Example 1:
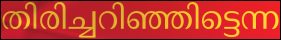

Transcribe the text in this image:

തിരിച്ചറിഞ്ഞിട്ടെന്ന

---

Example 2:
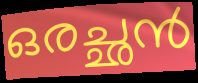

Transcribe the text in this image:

ഒരച്ഛൻ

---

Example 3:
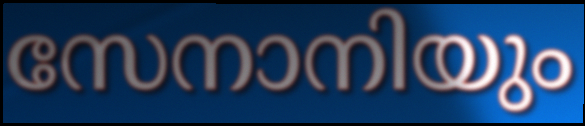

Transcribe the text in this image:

സേനാനിയും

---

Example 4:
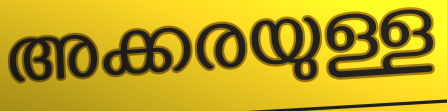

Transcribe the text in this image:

അക്കരയുള്ള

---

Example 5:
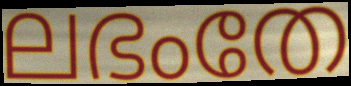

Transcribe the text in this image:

ലഭംതേ